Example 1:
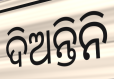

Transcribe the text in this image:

ଦିଅନ୍ତିନି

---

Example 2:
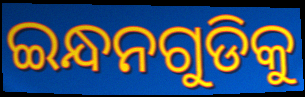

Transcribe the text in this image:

ଇନ୍ଧନଗୁଡିକୁ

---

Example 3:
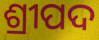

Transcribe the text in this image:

ଶ୍ରୀପଦ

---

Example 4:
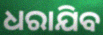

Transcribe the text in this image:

ଧରାଯିବ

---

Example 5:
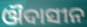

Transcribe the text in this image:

ଔଦାସୀନ